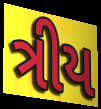
ત્રીય